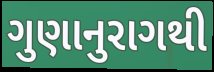
ગુણાનુરાગથી